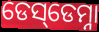
ଡେସ୍‌ଡେମ୍ନା